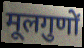
मूलगुणों